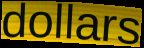
dollars